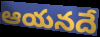
ఆయనదే